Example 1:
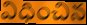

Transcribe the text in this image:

విధించిన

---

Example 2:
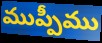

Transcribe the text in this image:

ముప్పీము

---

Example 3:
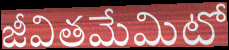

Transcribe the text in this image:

జీవితమేమిటో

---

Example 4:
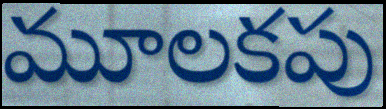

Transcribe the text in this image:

మూలకపు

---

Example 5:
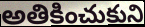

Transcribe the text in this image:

అతికించుకుని